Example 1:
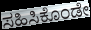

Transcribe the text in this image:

ಸಹಿಸಿಕೊಂಡೇ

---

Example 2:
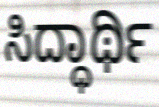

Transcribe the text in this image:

ಸಿದ್ಧಾರ್ಥಿ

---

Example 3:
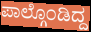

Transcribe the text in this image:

ಪಾಲ್ಗೊಂಡಿದ್ದ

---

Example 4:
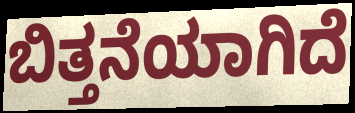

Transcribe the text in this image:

ಬಿತ್ತನೆಯಾಗಿದೆ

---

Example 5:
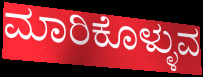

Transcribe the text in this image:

ಮಾರಿಕೊಳ್ಳುವ